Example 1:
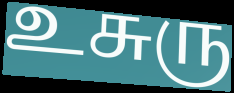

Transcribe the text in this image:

உசுரு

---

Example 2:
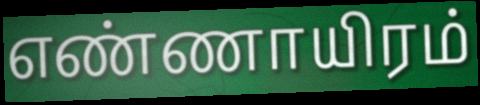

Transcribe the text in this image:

எண்ணாயிரம்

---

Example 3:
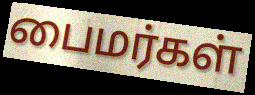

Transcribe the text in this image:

பைமர்கள்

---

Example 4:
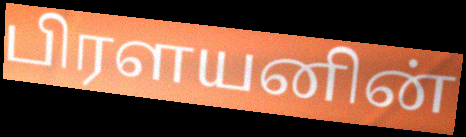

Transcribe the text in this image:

பிரளயனின்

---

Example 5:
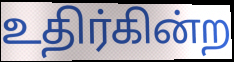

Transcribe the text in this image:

உதிர்கின்ற